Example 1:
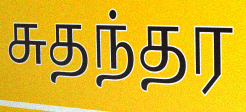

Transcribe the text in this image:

சுதந்தர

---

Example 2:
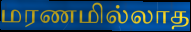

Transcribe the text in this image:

மரணமில்லாத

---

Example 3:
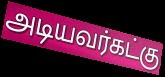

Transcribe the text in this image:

அடியவர்கட்கு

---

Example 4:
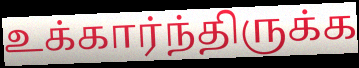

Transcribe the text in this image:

உக்கார்ந்திருக்க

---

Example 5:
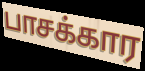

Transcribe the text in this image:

பாசக்கார